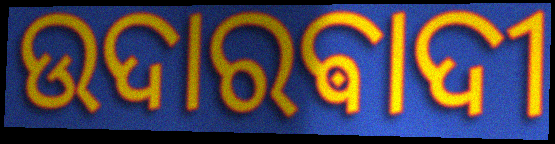
ଉଦାରଵାଦୀ